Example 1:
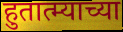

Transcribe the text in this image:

हुतात्म्याच्या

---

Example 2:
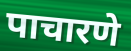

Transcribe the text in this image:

पाचारणे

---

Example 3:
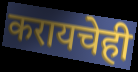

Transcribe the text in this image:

करायचेही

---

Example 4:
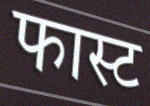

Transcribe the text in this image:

फास्ट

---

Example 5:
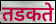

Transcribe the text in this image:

तडकते